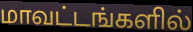
மாவட்டங்களில்